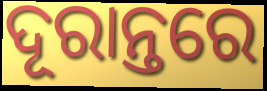
ଦୂରାନ୍ତରେ